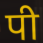
पी